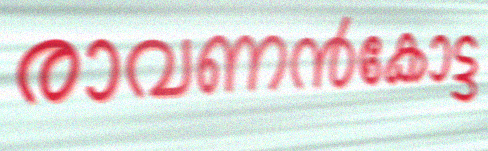
രാവണൻകോട്ട